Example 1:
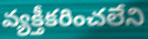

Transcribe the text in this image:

వ్యక్తీకరించలేని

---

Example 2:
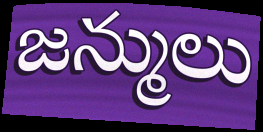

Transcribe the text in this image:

జన్ములు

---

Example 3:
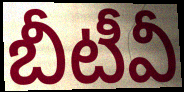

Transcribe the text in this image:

బీటీవీ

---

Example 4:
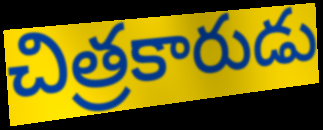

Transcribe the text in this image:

చిత్రకారుడు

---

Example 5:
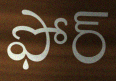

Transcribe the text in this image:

ఫోర్